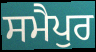
ਸਮੈਪੁਰ